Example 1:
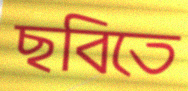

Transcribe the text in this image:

ছবিতে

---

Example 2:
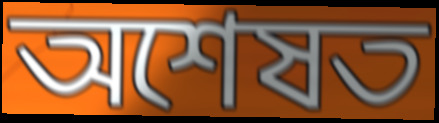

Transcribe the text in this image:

অশেষত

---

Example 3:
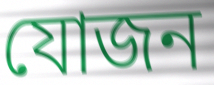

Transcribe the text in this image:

যোজন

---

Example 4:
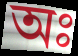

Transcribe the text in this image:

অঃ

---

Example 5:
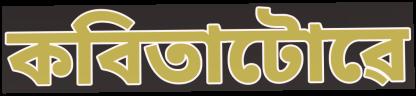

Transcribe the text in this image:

কবিতাটোৱে